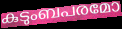
കുടുംബപരമോ